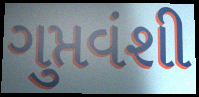
ગુપ્તવંશી